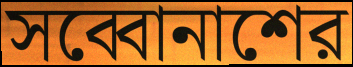
সব্বোনাশের